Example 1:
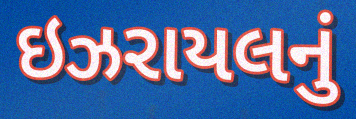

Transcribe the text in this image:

ઇઝરાયલનું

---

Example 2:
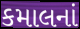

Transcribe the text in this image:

કમાલનાં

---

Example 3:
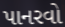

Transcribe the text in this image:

પાનરવો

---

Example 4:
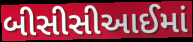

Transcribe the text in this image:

બીસીસીઆઈમાં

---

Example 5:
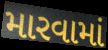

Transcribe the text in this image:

મારવામાં